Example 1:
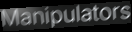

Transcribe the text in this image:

Manipulators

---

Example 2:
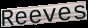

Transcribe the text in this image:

Reeves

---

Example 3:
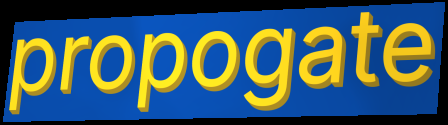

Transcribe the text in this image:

propogate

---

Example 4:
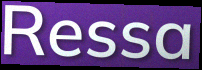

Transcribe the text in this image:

Ressa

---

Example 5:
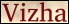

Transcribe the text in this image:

Vizha